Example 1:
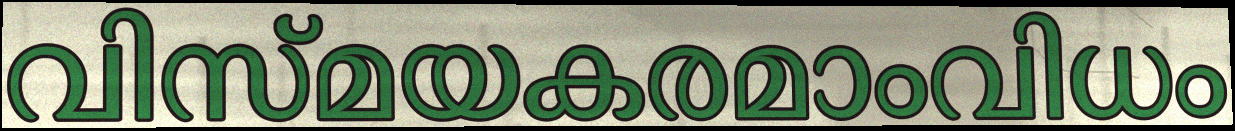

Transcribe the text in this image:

വിസ്മയകരമാംവിധം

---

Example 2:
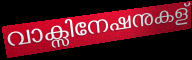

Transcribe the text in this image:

വാക്സിനേഷനുകള്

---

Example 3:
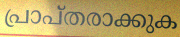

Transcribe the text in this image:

പ്രാപ്തരാക്കുക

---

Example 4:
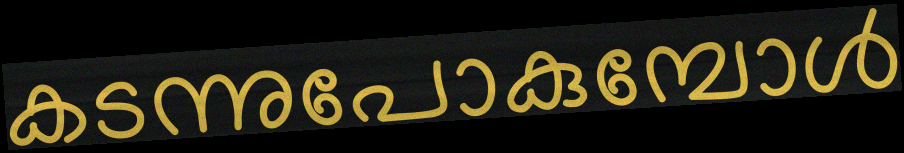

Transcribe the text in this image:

കടന്നുപോകുമ്പോൾ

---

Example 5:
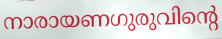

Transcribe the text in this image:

നാരായണഗുരുവിന്റെ